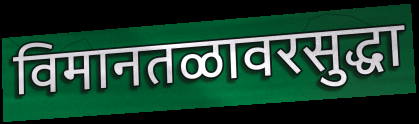
विमानतळावरसुद्धा